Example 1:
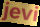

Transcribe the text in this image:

jevi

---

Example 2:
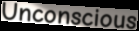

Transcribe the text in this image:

Unconscious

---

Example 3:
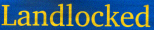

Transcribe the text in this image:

Landlocked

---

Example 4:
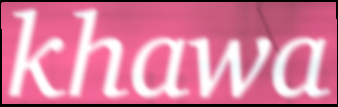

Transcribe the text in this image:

khawa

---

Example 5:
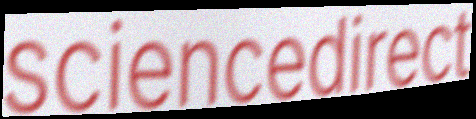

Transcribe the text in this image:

sciencedirect